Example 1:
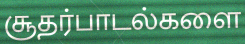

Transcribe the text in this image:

சூதர்பாடல்களை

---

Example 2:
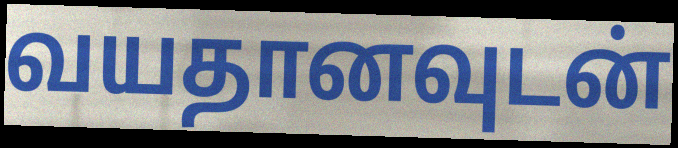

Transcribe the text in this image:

வயதானவுடன்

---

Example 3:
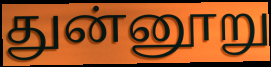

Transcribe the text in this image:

துன்னூறு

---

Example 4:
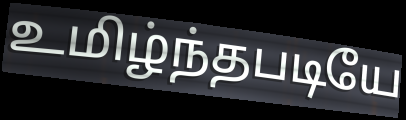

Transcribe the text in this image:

உமிழ்ந்தபடியே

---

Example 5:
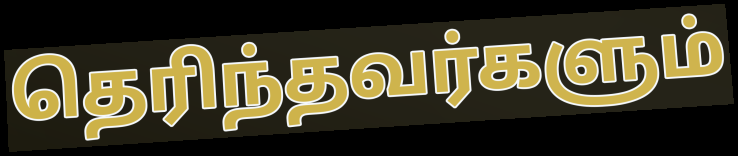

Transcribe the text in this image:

தெரிந்தவர்களும்